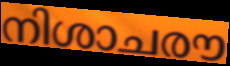
നിശാചരൗ